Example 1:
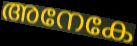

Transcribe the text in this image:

അനേകേ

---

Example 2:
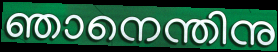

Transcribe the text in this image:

ഞാനെന്തിനു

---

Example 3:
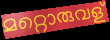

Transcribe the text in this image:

മറ്റൊരുവള്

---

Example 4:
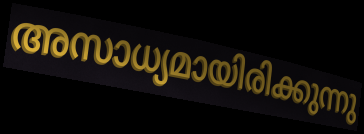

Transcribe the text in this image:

അസാധ്യമായിരിക്കുന്നു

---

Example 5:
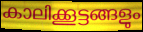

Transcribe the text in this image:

കാലിക്കൂട്ടങ്ങളും